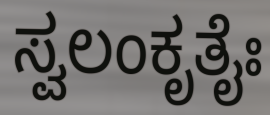
ಸ್ವಲಂಕೃತೈಃ